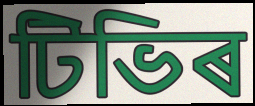
টিভিৰ